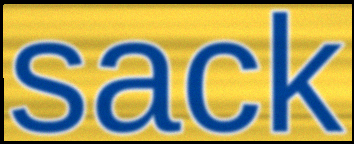
sack